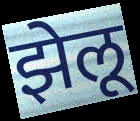
झेलू